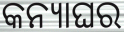
କନ୍ୟାଘର